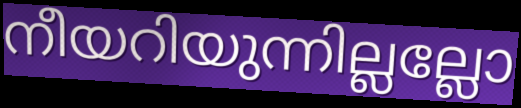
നീയറിയുന്നില്ലല്ലോ